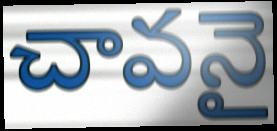
చావనై